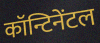
कॉन्टिनेंटल